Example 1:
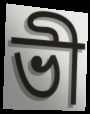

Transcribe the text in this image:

ভী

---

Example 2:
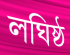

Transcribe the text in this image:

লঘিষ্ঠ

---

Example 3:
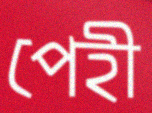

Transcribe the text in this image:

পেহী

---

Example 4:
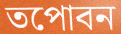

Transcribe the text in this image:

তপোবন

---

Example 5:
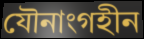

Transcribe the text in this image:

যৌনাংগহীন